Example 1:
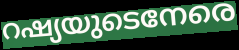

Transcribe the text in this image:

റഷ്യയുടെനേരെ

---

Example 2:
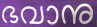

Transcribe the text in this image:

ഭവാനു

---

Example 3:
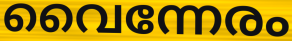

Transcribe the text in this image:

വൈന്നേരം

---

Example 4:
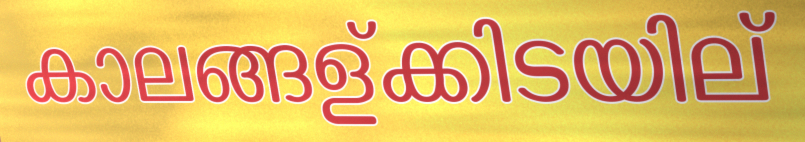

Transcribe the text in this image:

കാലങ്ങള്ക്കിടയില്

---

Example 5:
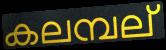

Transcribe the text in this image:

കലമ്പല്